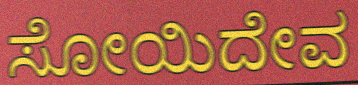
ಸೋಯಿದೇವ